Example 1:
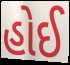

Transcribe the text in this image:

હોઈ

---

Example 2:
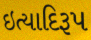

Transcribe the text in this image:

ઇત્યાદિરૂપ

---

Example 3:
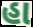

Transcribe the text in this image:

હા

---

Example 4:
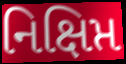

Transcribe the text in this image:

નિક્ષિપ્ત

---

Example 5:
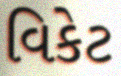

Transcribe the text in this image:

વિકેટ